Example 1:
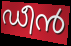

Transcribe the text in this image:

ഡീൻ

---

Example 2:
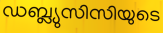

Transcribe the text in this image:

ഡബ്ല്യുസിസിയുടെ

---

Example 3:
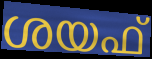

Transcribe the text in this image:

ശയഫ്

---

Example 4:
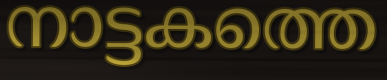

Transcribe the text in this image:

നാട്ടകത്തെ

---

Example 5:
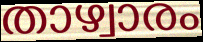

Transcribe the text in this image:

താഴ്വാരം